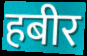
हबीर